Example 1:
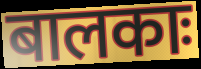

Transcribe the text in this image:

बालकाः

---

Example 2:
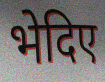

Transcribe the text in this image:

भेदिए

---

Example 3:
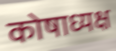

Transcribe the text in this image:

कोषाध्यक्ष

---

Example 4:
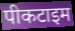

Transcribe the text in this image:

पीकटाइम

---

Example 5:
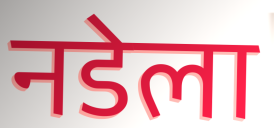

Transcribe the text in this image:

नडेला